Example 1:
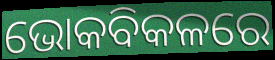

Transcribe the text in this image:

ଭୋକବିକଳରେ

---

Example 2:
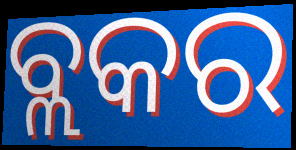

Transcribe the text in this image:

ବ୍ଲକର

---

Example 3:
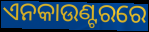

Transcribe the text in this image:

ଏନକାଉଣ୍ଟରରେ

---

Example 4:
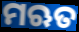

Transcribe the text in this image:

ମଋତ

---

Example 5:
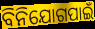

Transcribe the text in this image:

ବିନିଯୋଗପାଇଁ